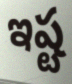
ఇష్ట